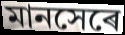
মানসেৰে